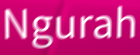
Ngurah